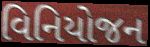
વિનિયોજન